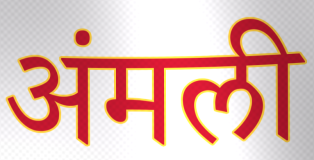
अंमली